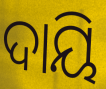
ଦାୟି